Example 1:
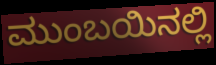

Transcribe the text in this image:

ಮುಂಬಯಿನಲ್ಲಿ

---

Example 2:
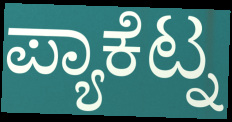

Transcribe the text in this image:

ಪ್ಯಾಕೆಟ್ನ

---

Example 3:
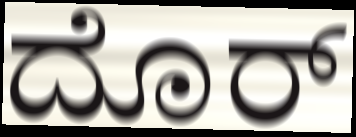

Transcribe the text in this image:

ದೊರ್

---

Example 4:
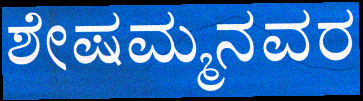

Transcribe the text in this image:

ಶೇಷಮ್ಮನವರ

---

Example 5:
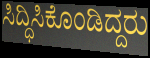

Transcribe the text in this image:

ಸಿದ್ಧಿಸಿಕೊಂಡಿದ್ದರು